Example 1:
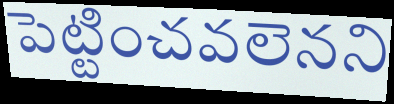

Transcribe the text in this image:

పెట్టించవలెనని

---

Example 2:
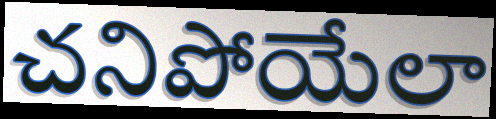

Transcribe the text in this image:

చనిపోయేలా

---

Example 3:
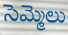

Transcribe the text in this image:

సెమ్మెలు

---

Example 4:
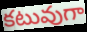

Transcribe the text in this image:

కటువుగా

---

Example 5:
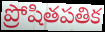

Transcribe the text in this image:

ప్రోషితపతిక